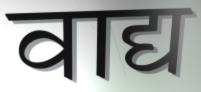
वाद्य